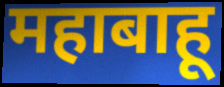
महाबाहू